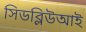
সিডব্লিউআই